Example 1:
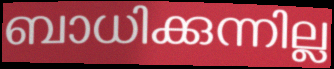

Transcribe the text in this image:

ബാധിക്കുന്നില്ല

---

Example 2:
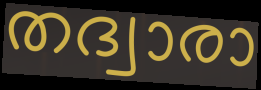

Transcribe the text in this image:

തദ്വാരാ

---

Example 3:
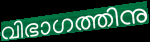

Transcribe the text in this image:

വിഭാഗത്തിനു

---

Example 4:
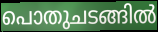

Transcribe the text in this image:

പൊതുചടങ്ങിൽ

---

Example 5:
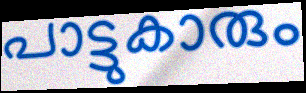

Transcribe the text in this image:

പാട്ടുകാരും